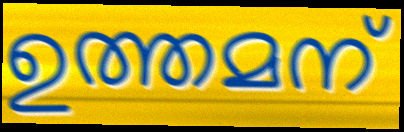
ഉത്തമന്